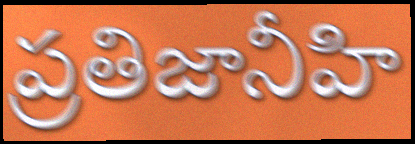
ప్రతిజానీహి